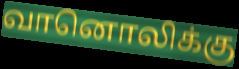
வானொலிக்கு